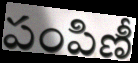
పంపిణీ